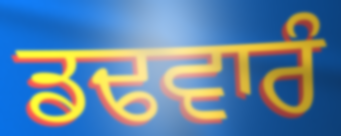
ਡਢਵਾਰੰ